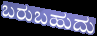
ಬರುಬಹುದು